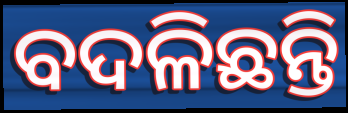
ବଦଳିଛନ୍ତି